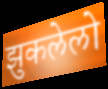
झुकलेलो